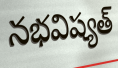
నభవిష్యత్